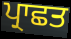
ਪ੍ਰਾਛਤ